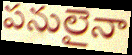
పనులైనా